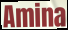
Amina